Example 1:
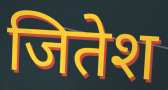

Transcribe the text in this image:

जितेश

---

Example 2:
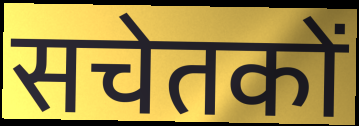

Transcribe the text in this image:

सचेतकों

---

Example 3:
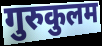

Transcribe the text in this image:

गुरुकुलम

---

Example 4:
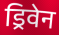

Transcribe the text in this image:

ड्रिवेन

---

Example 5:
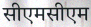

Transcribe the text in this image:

सीएमसीएम